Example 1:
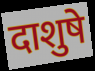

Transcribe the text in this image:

दाशुषे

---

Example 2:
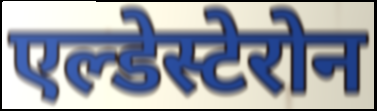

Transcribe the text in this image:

एल्डेस्टेरोन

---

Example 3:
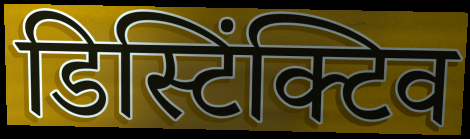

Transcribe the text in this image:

डिस्टिंक्टिव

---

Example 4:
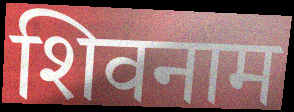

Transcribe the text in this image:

शिवनाम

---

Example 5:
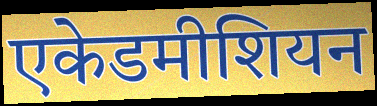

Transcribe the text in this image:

एकेडमीशियन